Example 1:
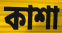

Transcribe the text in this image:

কাশা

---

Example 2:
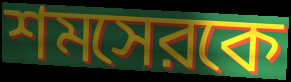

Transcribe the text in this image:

শমসেরকে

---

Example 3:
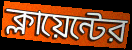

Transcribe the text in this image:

ক্লায়েন্টের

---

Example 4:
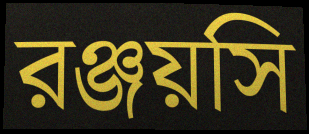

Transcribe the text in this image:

রঞ্জয়সি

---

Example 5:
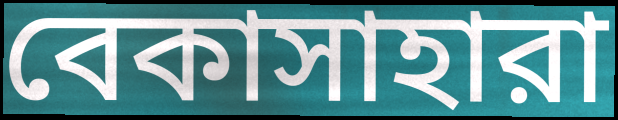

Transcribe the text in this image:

বেকাসাহারা